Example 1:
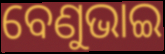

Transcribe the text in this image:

ବେଣୁଭାଇ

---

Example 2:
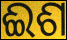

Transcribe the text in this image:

ଈଶ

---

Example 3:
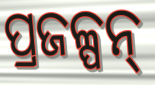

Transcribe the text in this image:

ପ୍ରଜଳ୍ପନ୍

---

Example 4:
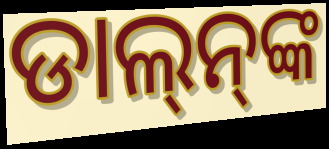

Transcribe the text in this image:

ଡାଲ୍‌ନ୍‌ଙ୍କ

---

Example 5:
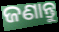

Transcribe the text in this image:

ଜଣାନ୍ତୁ